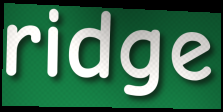
ridge